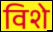
विशे